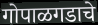
गोपाळगडाचे